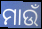
ମାଉଁ